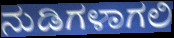
ನುಡಿಗಳಾಗಲಿ